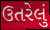
ઉતરેલું